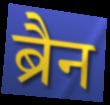
ब्रैन